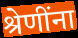
श्रेणींना